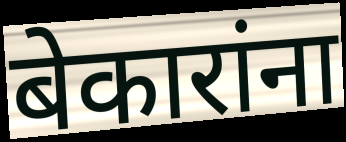
बेकारांना